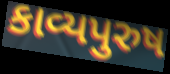
કાવ્યપુરુષ